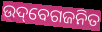
ଉଦ୍‌ବେଗଜନିତ